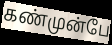
கண்முன்பே